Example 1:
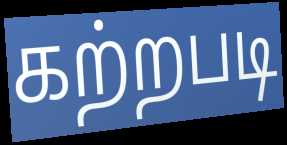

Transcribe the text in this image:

கற்றபடி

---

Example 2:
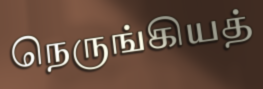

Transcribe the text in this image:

நெருங்கியத்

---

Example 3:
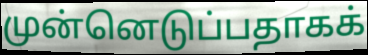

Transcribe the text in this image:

முன்னெடுப்பதாகக்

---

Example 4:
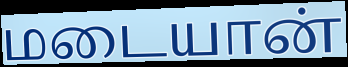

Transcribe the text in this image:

மடையான்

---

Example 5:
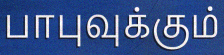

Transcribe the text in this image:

பாபுவுக்கும்